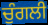
ਚੁੰਗਲੀ